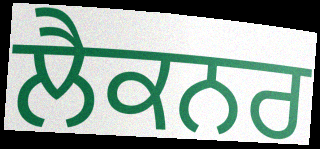
ਲੈਕਨਰ